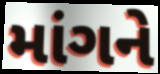
માંગને